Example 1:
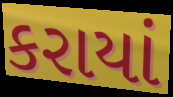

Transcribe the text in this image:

કરાયાં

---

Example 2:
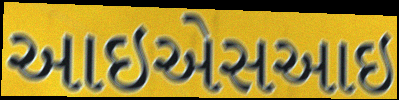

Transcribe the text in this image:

આઇએસઆઇ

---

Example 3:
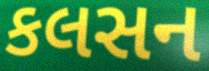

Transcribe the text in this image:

કલસન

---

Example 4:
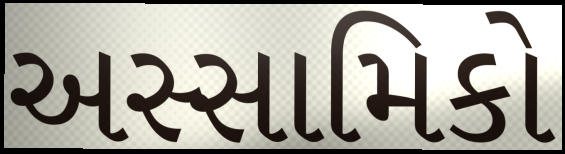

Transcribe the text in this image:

અસ્સામિકો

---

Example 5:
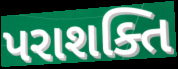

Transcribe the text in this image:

પરાશક્તિ